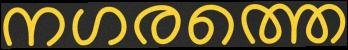
നഗരത്തെ